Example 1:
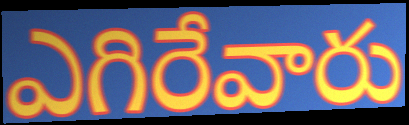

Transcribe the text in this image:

ఎగిరేవారు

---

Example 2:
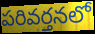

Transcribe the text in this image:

పరివర్తనలో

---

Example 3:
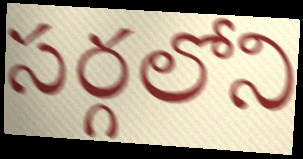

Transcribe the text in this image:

సర్గలోని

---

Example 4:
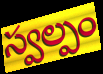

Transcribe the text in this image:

స్వల్పం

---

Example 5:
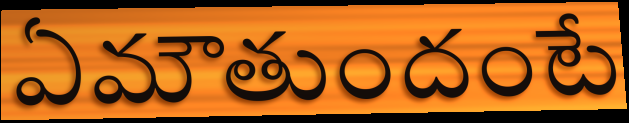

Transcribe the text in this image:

ఏమౌతుందంటే